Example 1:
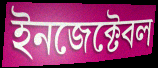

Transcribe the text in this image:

ইনজেক্টেবল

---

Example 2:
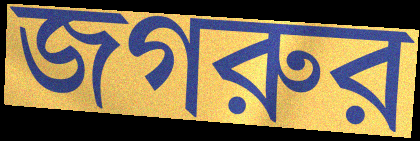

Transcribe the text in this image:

জগরুর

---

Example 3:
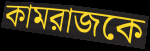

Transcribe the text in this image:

কামরাজকে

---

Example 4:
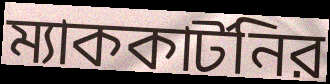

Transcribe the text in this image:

ম্যাককার্টনির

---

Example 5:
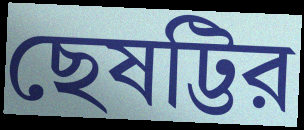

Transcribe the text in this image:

ছেষট্টির